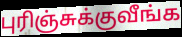
புரிஞ்சுக்குவீங்க